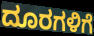
ದೂರಗಳಿಗೆ